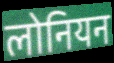
लोनियन